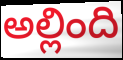
అల్లింది